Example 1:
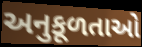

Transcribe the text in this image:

અનુકૂળતાઓ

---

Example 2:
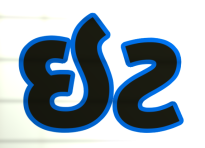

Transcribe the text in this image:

ઇટ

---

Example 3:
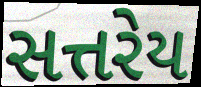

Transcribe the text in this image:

સત્તરેય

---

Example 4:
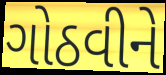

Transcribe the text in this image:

ગોઠવીને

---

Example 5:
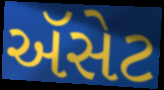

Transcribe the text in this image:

ઍસેટ